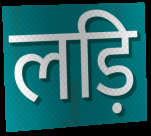
लड़ि